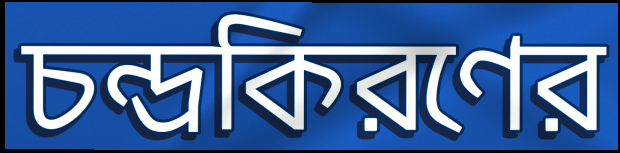
চন্দ্রকিরণের